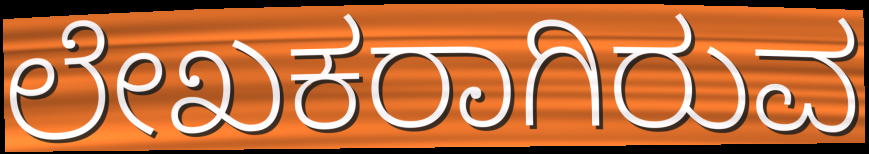
ಲೇಖಕರಾಗಿರುವ